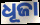
ଧୂଜା